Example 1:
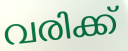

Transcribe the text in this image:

വരിക്ക്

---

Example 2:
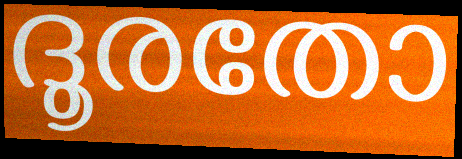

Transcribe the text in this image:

ദൂരതോ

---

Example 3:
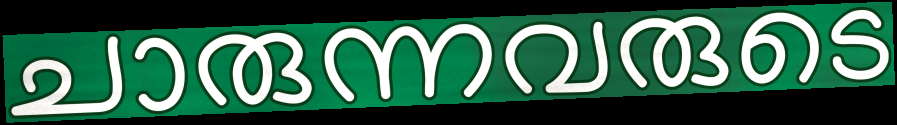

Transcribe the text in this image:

ചാരുന്നവരുടെ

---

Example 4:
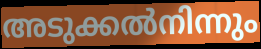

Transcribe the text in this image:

അടുക്കൽനിന്നും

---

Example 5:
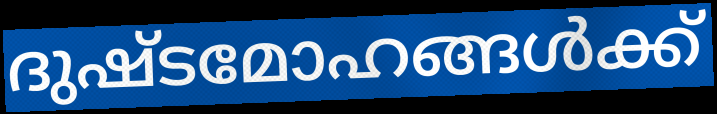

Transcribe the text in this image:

ദുഷ്ടമോഹങ്ങൾക്ക്